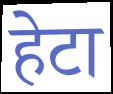
हेटा